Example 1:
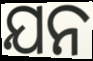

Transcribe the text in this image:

ଯନ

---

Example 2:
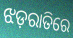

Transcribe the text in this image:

ଝଡ଼ରାତିରେ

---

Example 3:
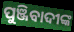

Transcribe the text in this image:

ପୁଞ୍ଜିବାଦୀଙ୍କ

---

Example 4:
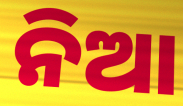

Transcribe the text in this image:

ନିଆ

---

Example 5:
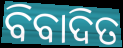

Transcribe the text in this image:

ବିବାଦିତ